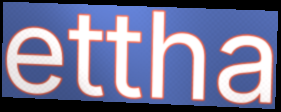
ettha